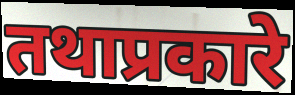
तथाप्रकारे